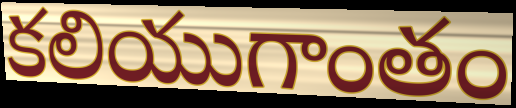
కలియుగాంతం